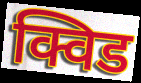
क्विड